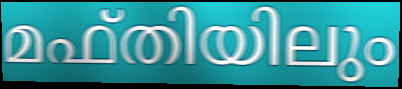
മഫ്തിയിലും